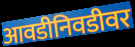
आवडीनिवडीवर